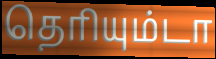
தெரியும்டா